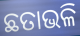
ଛତାଭଳି